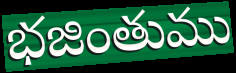
భజింతుము